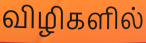
விழிகளில்